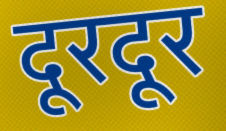
दूरदूर